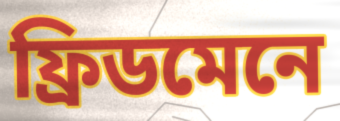
ফ্ৰিডমেনে